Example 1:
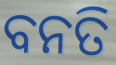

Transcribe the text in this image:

ବନତି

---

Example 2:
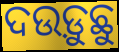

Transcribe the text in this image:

ଦଉଡ଼ୁଛୁ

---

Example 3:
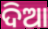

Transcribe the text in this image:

ଦିଆ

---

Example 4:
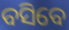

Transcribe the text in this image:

ବସିବେ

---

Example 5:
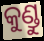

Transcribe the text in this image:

କୁଣ୍ଡୁ